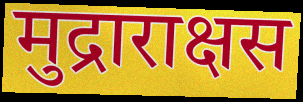
मुद्राराक्षस